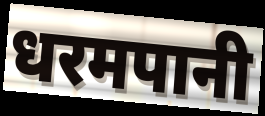
धरमपानी